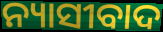
ନ୍ୟାସୀବାଦ